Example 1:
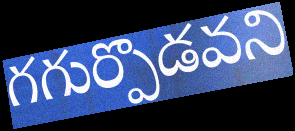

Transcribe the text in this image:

గగుర్పొడవని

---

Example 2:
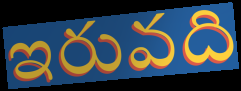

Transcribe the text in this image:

ఇరువది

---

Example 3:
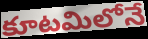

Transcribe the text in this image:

కూటమిలోనే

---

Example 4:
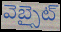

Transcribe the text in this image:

వెబ్సైట్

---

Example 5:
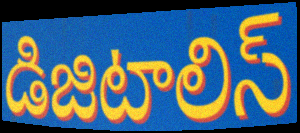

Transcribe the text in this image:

డిజిటాలిస్